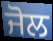
ਜੋਲ